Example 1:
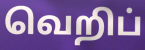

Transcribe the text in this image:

வெறிப்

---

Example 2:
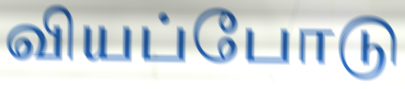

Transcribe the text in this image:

வியப்போடு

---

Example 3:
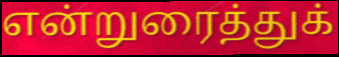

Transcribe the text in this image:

என்றுரைத்துக்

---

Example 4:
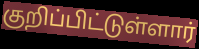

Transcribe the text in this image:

குறிப்பிட்டுள்ளார்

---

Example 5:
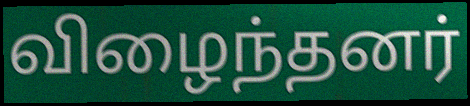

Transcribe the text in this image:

விழைந்தனர்